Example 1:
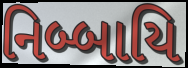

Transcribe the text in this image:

નિબ્બાયિ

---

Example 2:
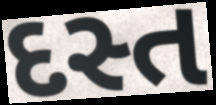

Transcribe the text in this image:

દસ્ત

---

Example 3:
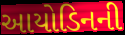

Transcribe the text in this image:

આયોડિનની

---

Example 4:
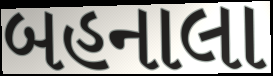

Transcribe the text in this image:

બહનાલા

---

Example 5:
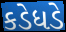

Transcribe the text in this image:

કડેધડે